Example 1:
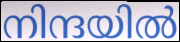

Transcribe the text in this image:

നിന്ദയിൽ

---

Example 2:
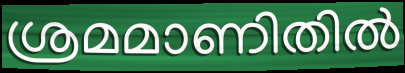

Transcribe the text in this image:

ശ്രമമാണിതിൽ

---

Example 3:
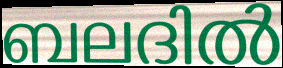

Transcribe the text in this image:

ബലദിൽ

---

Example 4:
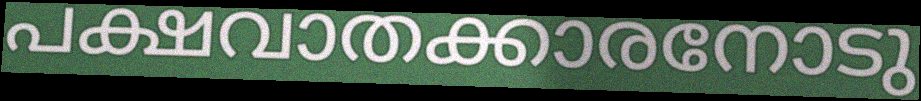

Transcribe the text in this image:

പക്ഷവാതക്കാരനോടു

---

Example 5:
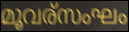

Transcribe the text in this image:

മൂവര്സംഘം